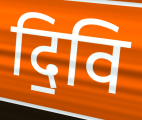
दि॒वि